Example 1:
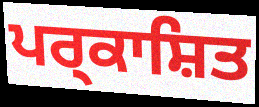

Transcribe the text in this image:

ਪਰ੍ਕਾਸ਼ਿਤ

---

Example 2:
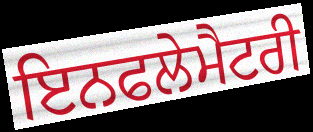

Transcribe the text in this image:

ਇਨਫਲੇਮੈਟਰੀ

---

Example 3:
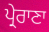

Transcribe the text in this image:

ਪ੍ਰੇਰਾਣਾ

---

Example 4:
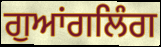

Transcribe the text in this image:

ਗੁਆਂਗਲਿੰਗ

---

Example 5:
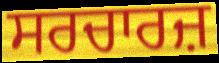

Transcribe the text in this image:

ਸਰਚਾਰਜ਼